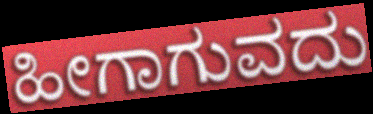
ಹೀಗಾಗುವದು